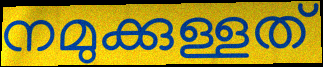
നമുക്കുള്ളത്